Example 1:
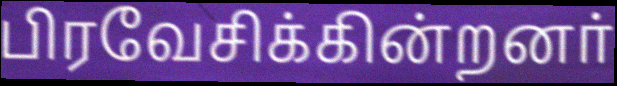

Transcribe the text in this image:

பிரவேசிக்கின்றனர்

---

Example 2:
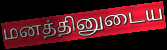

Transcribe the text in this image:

மனத்தினுடைய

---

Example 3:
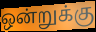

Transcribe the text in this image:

ஒன்றுக்கு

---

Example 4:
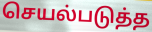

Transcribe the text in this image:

செயல்படுத்த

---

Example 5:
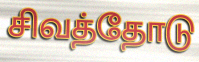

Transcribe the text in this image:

சிவத்தோடு